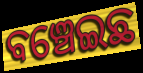
ବଞ୍ଚେଇଛ